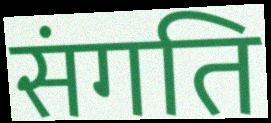
संगति